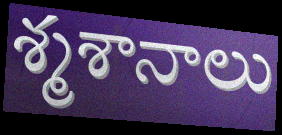
శ్మశానాలు